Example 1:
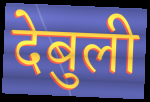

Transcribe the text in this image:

देबुली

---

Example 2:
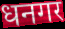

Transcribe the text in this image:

धनगर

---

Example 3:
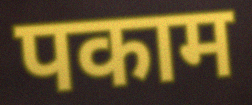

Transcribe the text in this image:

पकाम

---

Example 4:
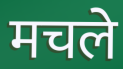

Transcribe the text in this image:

मचले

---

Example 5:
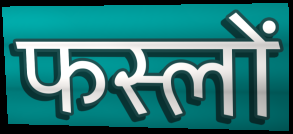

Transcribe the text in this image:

फस्लों